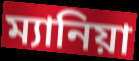
ম্যানিয়া